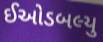
ઈઓડબલ્યુ